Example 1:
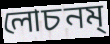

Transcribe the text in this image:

লোচনম্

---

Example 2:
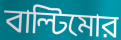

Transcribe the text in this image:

বাল্টিমোর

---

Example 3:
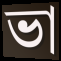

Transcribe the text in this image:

ভা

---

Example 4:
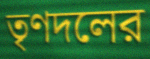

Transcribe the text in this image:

তৃণদলের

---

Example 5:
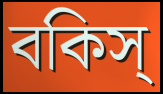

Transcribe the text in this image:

বকিস্